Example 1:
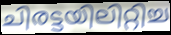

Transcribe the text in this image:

ചിരട്ടയിലിറ്റിച്ച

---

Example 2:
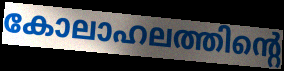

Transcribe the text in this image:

കോലാഹലത്തിന്റെ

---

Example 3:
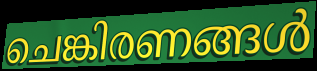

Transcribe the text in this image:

ചെങ്കിരണങ്ങൾ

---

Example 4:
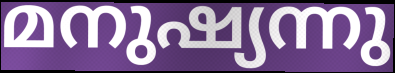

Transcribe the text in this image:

മനുഷ്യന്നു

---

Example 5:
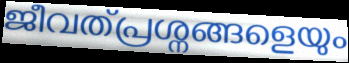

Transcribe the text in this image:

ജീവത്പ്രശ്നങ്ങളെയും